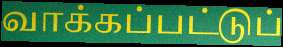
வாக்கப்பட்டுப்